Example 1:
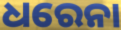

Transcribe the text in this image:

ଧରେନା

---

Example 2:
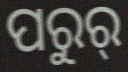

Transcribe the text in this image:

ପରୁର୍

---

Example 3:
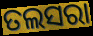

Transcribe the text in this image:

ତଲସରା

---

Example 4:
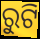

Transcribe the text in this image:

ରୁଟି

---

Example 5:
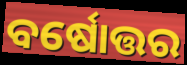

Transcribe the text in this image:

ବର୍ଷୋତ୍ତର